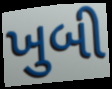
ખુબી